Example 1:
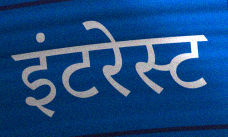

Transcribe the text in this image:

इंटरेस्ट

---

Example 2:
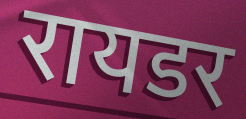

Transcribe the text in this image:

रायडर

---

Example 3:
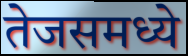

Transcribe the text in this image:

तेजसमध्ये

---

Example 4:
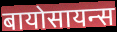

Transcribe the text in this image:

बायोसायन्स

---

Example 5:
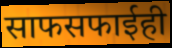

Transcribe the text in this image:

साफसफाईही